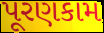
પૂરણકામ